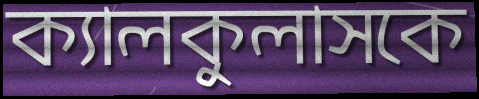
ক্যালকুলাসকে